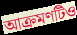
আক্রমণটিও